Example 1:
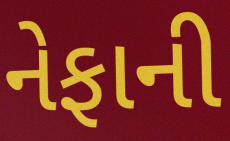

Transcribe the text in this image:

નેફાની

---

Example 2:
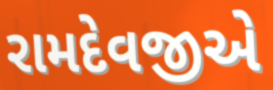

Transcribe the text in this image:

રામદેવજીએ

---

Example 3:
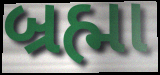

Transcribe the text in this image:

બ્રહ્મા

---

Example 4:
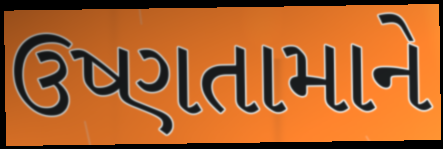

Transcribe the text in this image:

ઉષ્ણતામાને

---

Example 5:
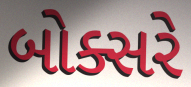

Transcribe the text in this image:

બોક્સરે